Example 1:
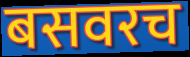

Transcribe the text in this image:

बसवरच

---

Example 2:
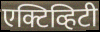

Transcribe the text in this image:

एक्टिव्हिटी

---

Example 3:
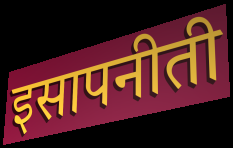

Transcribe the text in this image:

इसापनीती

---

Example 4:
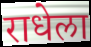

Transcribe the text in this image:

राधेला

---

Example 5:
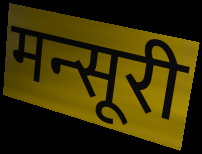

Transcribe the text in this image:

मन्सूरी